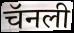
चॅनली